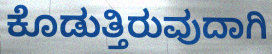
ಕೊಡುತ್ತಿರುವುದಾಗಿ